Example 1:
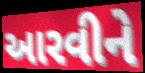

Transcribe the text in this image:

આરવીને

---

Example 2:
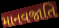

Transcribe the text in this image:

માનવજાતિ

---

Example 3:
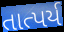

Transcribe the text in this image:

તાત્પર્ય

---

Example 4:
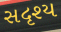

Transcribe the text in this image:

સદૃશ્ય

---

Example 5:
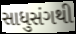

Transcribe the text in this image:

સાધુસંગથી